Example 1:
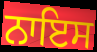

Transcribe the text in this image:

ਨਾਇਸ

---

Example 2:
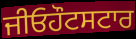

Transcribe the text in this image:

ਜੀਓਹੌਟਸਟਾਰ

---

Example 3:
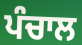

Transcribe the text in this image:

ਪੰਚਾਲ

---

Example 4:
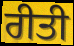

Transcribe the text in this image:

ਰੀਤੀ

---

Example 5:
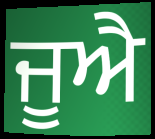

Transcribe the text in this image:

ਜੂਐ